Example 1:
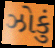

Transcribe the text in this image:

ઝોકું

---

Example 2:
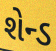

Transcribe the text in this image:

શેન્ડ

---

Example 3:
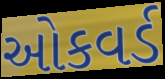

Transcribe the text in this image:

ઓકવર્ડ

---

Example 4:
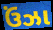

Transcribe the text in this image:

ઉંઝા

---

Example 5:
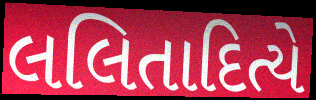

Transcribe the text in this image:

લલિતાદિત્યે